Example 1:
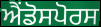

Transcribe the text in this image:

ਐਂਡੋਸਪੋਰਸ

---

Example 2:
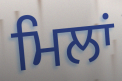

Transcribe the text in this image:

ਮਿਲਾਂ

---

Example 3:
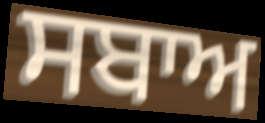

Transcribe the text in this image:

ਸਬਾਅ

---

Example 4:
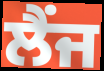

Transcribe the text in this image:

ਲੈਂਜ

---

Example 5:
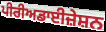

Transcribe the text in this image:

ਪੀਰੀਅਡਾਈਜ਼ੇਸ਼ਨ